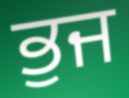
ਭੁਜ